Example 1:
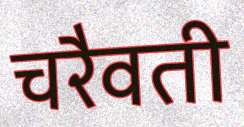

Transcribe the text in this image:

चरैवती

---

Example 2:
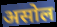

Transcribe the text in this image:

असोल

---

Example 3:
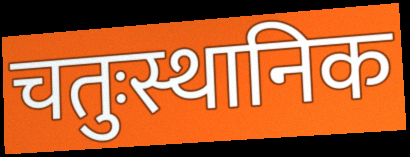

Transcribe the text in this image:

चतुःस्थानिक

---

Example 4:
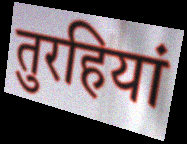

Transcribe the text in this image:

तुरहियां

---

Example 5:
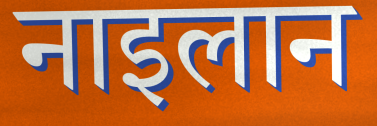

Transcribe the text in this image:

नाइलान